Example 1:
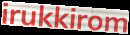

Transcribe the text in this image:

irukkirom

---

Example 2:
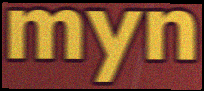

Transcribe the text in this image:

myn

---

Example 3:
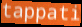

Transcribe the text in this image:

tappati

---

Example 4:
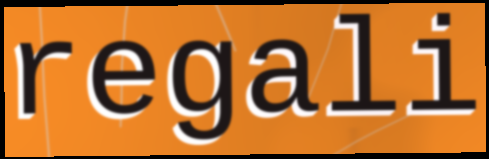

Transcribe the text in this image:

regali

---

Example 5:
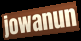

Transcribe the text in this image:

jowanun